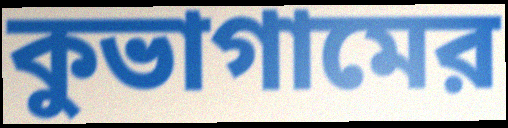
কুভাগামের